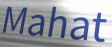
Mahat